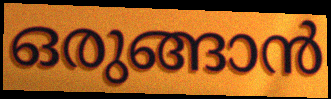
ഒരുങ്ങാൻ